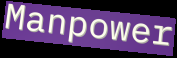
Manpower